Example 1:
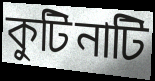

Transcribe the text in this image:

কুটিনাটি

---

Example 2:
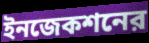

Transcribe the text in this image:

ইনজেকশনের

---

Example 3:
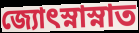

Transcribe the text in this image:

জ্যোৎস্নাস্নাত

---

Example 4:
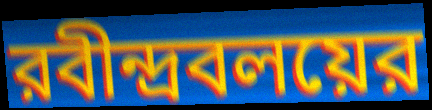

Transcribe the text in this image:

রবীন্দ্রবলয়ের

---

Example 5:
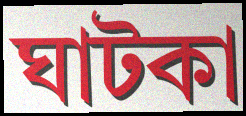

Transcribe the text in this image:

ঘাটকা